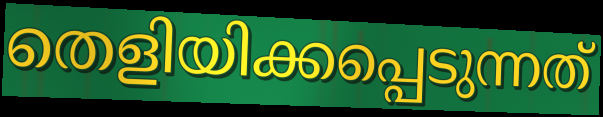
തെളിയിക്കപ്പെടുന്നത്